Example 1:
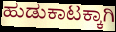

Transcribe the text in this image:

ಹುಡುಕಾಟಕ್ಕಾಗಿ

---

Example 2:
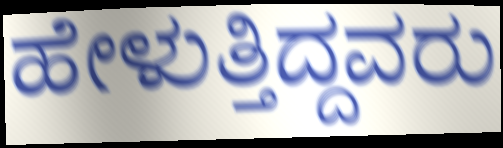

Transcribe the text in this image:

ಹೇಳುತ್ತಿದ್ದವರು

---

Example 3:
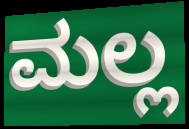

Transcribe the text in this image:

ಮಲ್ಲ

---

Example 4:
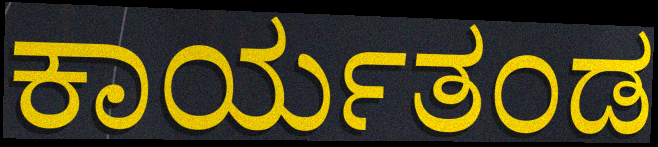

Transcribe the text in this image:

ಕಾರ್ಯತಂಡ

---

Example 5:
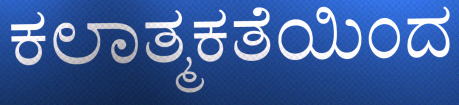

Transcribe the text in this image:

ಕಲಾತ್ಮಕತೆಯಿಂದ